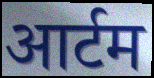
आर्टम